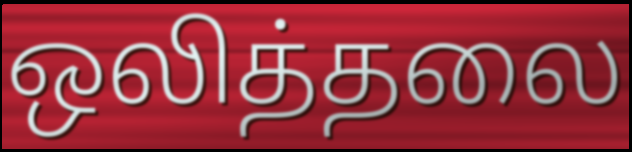
ஒலித்தலை